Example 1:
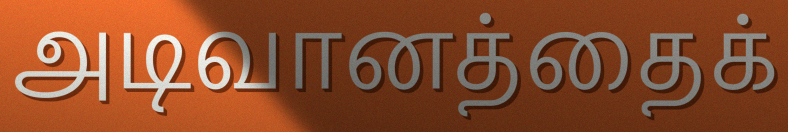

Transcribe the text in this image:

அடிவானத்தைக்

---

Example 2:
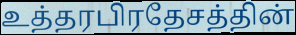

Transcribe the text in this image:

உத்தரபிரதேசத்தின்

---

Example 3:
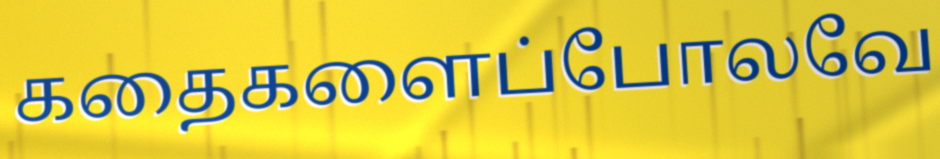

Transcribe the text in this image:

கதைகளைப்போலவே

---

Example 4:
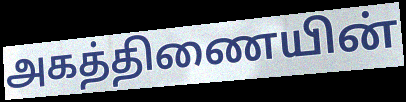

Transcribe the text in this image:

அகத்திணையின்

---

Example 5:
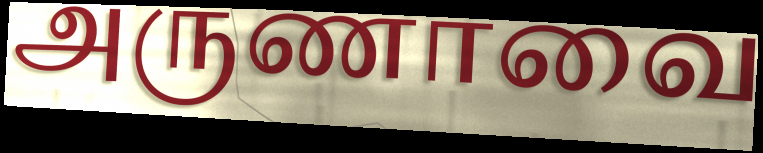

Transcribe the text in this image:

அருணாவை